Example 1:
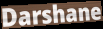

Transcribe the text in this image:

Darshane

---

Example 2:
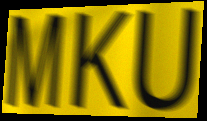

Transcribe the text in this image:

MKU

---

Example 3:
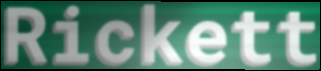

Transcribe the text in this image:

Rickett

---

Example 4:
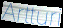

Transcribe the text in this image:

Artturi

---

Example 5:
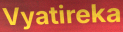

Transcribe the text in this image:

Vyatireka